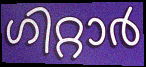
ഗിറ്റാർ